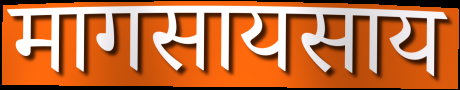
मागसायसाय